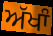
ਅੱਖਾੰ